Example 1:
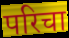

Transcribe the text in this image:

परिचा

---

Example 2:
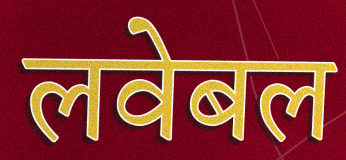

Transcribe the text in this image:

लवेबल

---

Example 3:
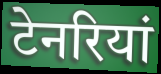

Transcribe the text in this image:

टेनरियां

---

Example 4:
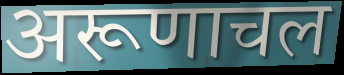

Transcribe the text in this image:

अरूणाचल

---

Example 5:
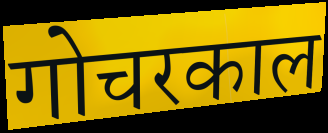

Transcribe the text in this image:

गोचरकाल